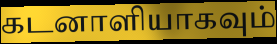
கடனாளியாகவும்